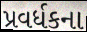
પ્રવર્ધકના